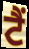
ਟੈੰ